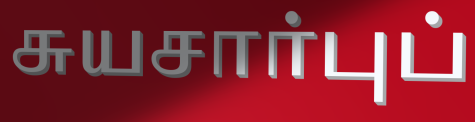
சுயசார்புப்